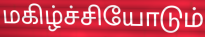
மகிழ்ச்சியோடும்